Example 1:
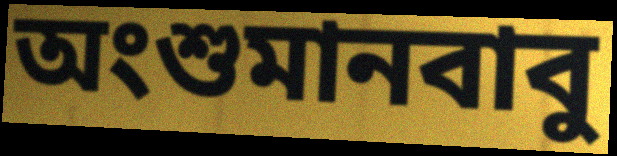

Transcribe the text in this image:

অংশুমানবাবু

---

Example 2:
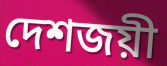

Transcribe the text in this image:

দেশজয়ী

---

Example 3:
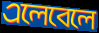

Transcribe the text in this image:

এলেবেলে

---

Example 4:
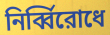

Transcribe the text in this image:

নির্ব্বিরোধে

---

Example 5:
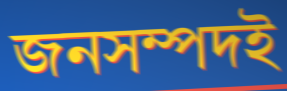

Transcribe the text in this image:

জনসম্পদই